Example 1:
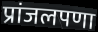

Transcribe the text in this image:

प्रांजलपणा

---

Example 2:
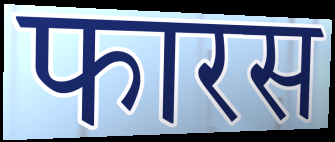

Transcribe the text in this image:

फारस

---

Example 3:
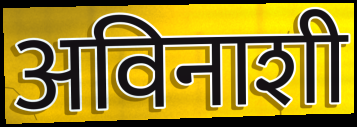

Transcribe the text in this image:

अविनाशी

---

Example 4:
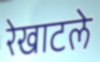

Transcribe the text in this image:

रेखाटले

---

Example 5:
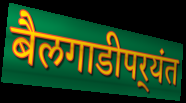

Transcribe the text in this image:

बैलगाडीपर्यंत